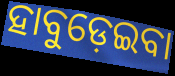
ହାବୁଡ଼େଇବା